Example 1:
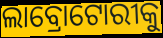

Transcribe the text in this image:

ଲାବ୍ରୋଟୋରୀକୁ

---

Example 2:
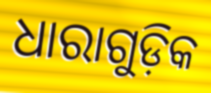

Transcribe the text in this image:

ଧାରାଗୁଡ଼ିକ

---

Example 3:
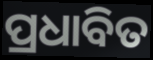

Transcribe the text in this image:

ପ୍ରଧାବିତ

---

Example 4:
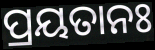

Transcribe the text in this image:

ପ୍ରୟତାନଃ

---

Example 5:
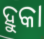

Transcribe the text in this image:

ହୁକା